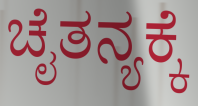
ಚೈತನ್ಯಕ್ಕೆ